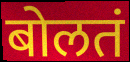
बोलतं